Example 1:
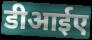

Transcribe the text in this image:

डीआईए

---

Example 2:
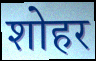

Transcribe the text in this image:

शोहर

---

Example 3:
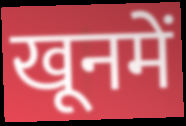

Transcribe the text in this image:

खूनमें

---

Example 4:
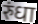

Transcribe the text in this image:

रुंधा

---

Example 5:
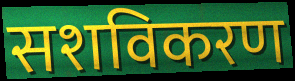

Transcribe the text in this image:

सशविकरण